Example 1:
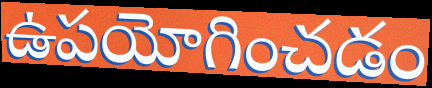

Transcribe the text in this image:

ఉపయోగించడం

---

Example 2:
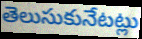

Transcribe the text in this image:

తెలుసుకునేటట్లు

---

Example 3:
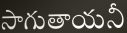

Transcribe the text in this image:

సాగుతాయనీ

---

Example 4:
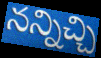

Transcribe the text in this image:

నన్నిచ్చి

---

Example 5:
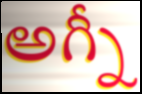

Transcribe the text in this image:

అగ్నీ